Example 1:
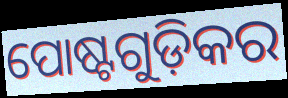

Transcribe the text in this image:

ପୋଷ୍ଟଗୁଡ଼ିକର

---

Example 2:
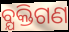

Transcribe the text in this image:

ବ୍ଯକ୍ତିଗଣ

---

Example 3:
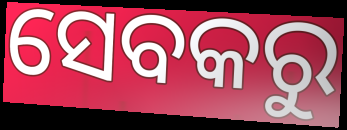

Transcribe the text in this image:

ସେବକରୁ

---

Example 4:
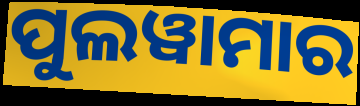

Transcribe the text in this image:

ପୁଲୱାମାର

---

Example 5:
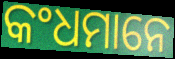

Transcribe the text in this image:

କଂଧମାନେ